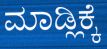
ಮಾಡ್ಲಿಕ್ಕೆ